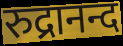
रुद्रानन्द